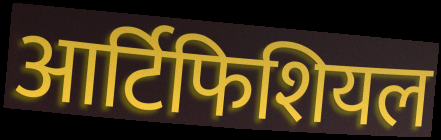
आर्टिफिशियल